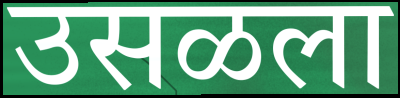
उसळला